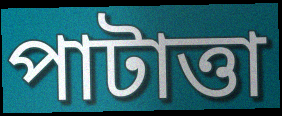
পাটাত্তা